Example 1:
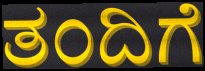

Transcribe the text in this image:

ತಂದಿಗೆ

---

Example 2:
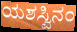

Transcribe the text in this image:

ಯಶಸ್ವಿನಂ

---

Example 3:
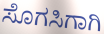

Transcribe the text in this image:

ಸೊಗಸಿಗಾಗಿ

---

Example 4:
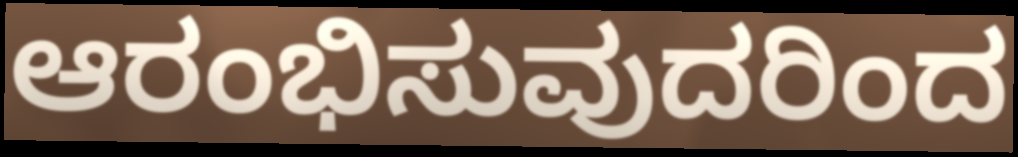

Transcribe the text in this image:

ಆರಂಭಿಸುವುದರಿಂದ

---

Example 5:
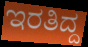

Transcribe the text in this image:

ಇರತಿದ್ದ